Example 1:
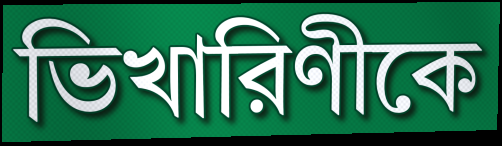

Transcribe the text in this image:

ভিখারিণীকে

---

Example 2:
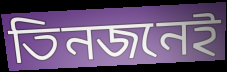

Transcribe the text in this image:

তিনজনেই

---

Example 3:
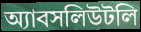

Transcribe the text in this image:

অ্যাবসলিউটলি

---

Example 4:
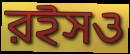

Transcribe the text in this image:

রইসও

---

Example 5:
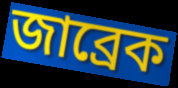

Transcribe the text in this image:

জাব্রেক